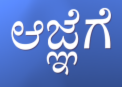
ಆಜ್ಞೆಗೆ